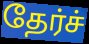
தேர்ச்